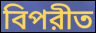
বিপরীত